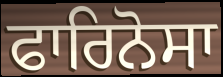
ਫਾਰਿਨੋਸਾ